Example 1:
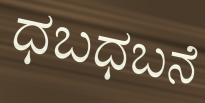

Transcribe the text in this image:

ಧಬಧಬನೆ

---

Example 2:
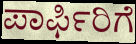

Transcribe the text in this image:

ಪಾರ್ಫಿರಿಗೆ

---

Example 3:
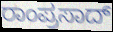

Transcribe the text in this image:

ರಾಂಪ್ರಸಾದ್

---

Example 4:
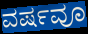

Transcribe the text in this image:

ವರ್ಷವೂ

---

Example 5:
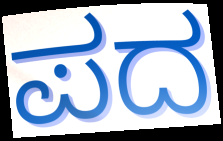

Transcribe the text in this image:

ಪದ